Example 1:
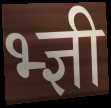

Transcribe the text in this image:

भ्ज्ञी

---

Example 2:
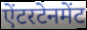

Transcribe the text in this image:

ऐंटरटेनमेंट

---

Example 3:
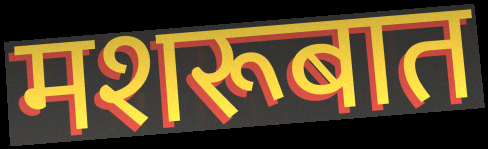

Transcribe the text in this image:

मशरूबात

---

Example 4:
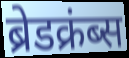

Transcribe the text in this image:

ब्रेडक्रंब्स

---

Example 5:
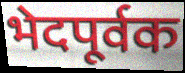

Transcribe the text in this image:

भेदपूर्वक